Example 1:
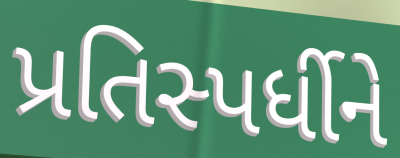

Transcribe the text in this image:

પ્રતિસ્પર્ધીને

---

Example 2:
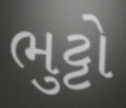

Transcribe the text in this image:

ભુટ્ટો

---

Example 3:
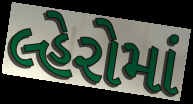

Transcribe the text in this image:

લ્હેરોમાં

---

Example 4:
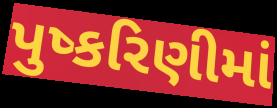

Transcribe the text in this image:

પુષ્કરિણીમાં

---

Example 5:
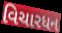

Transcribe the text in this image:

વિચારધન